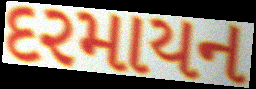
દરમાયન